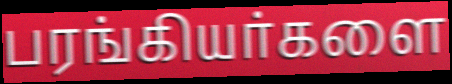
பரங்கியர்களை